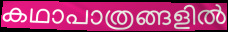
കഥാപാത്രങ്ങളിൽ